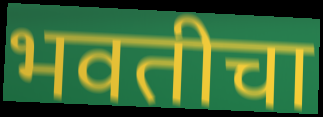
भवतीचा